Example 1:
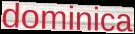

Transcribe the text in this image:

dominica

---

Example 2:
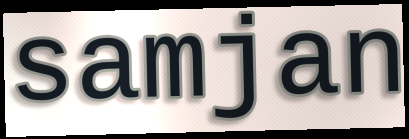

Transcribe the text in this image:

samjan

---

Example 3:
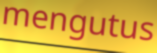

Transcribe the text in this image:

mengutus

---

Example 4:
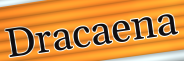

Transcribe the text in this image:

Dracaena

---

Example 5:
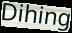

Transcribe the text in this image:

Dihing